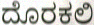
ದೊರಕಲಿ